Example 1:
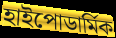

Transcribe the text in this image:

হাইপোডার্মিক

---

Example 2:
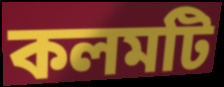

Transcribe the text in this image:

কলমটি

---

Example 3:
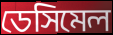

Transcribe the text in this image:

ডেসিমেল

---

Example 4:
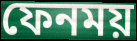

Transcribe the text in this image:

ফেনময়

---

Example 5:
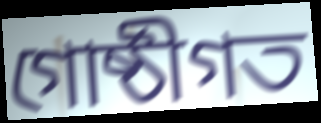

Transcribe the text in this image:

গোষ্ঠীগত